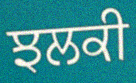
ਝਲਕੀ